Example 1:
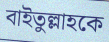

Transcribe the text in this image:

বাইতুল্লাহকে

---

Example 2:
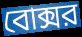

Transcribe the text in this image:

বোক্সর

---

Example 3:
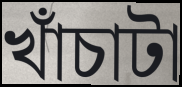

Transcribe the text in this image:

খাঁচাটা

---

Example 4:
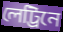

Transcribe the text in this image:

লেট্রিনে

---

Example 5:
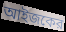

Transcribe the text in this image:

আইজকের